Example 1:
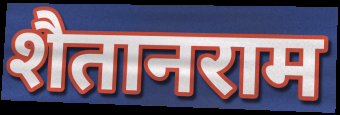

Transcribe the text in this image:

शैतानराम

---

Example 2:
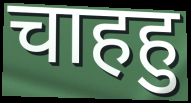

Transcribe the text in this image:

चाहहु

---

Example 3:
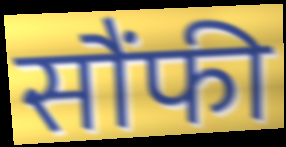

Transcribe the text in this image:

सौंफी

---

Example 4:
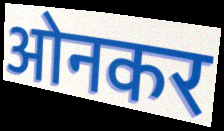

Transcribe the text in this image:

ओनकर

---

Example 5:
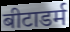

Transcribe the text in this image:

बीटाडर्म